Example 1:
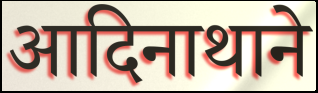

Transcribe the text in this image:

आदिनाथाने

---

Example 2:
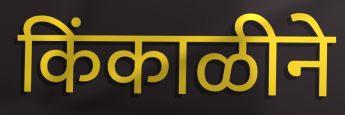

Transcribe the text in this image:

किंकाळीने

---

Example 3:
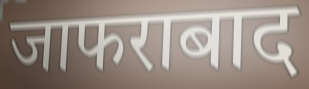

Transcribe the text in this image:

जाफराबाद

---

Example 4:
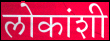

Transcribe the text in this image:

लोकांशी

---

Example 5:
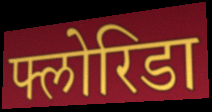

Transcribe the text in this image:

फ्लोरिडा